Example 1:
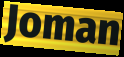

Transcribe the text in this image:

Joman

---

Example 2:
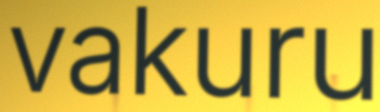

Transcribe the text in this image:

vakuru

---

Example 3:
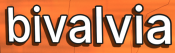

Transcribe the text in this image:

bivalvia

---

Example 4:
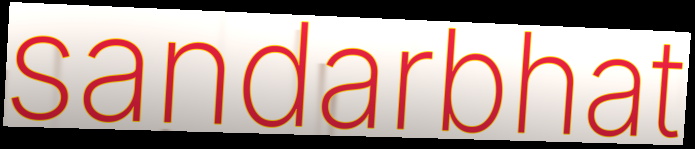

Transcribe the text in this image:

sandarbhat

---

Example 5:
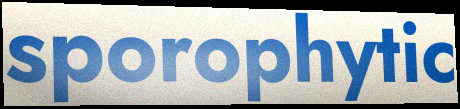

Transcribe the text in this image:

sporophytic